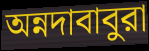
অন্নদাবাবুরা